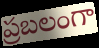
ప్రబలంగా